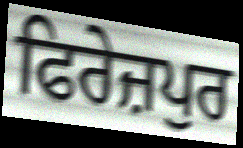
ਫਿਰੇਜ਼ਪੁਰ